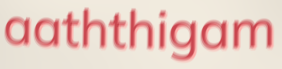
aaththigam